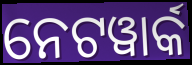
ନେଟୱାର୍କ